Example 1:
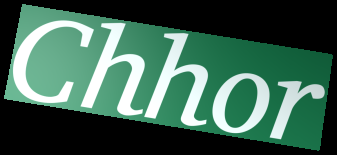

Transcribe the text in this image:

Chhor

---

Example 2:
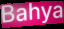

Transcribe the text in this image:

Bahya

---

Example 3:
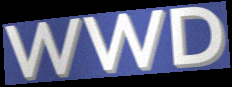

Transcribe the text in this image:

WWD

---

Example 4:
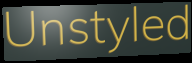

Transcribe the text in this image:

Unstyled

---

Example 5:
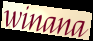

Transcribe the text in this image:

winana